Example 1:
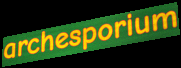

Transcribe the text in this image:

archesporium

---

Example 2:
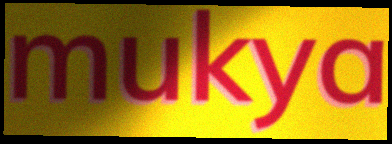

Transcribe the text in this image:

mukya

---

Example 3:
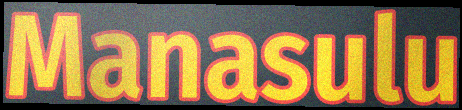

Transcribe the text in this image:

Manasulu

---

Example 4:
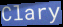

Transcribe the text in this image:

Clary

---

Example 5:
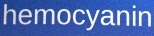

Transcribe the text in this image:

hemocyanin